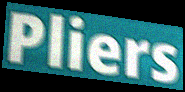
Pliers